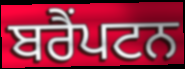
ਬਰੈੰਪਟਨ